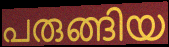
പരുങ്ങിയ